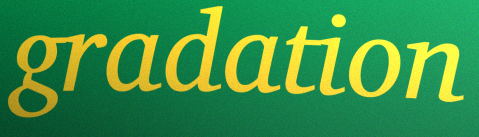
gradation